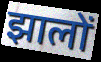
झालों